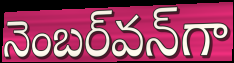
నెంబర్‌వన్‌గా